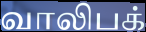
வாலிபக்